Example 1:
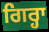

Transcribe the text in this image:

ਗਿਰ੍ਹਾ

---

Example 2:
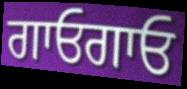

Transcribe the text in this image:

ਗਾਓਗਾਓ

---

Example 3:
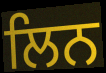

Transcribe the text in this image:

ਲਿਨ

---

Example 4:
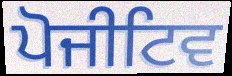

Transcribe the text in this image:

ਪੋਜੀਟਿਵ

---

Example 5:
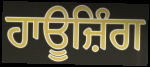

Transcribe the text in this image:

ਹਾਊਜ਼ਿੰਗ